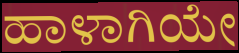
ಹಾಳಾಗಿಯೇ